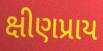
ક્ષીણપ્રાય